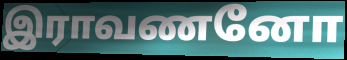
இராவணனோ